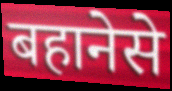
बहानेसे